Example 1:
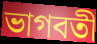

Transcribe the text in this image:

ভাগবতী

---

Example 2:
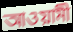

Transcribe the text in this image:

আওয়ামী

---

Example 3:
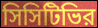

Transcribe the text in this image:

সিসিটিভির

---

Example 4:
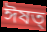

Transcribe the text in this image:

ঈষত্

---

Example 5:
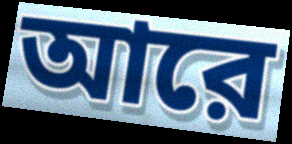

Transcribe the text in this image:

আরে